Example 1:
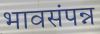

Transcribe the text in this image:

भावसंपन्न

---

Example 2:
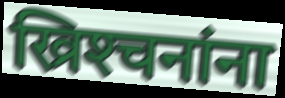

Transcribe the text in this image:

ख्रिश्‍चनांना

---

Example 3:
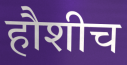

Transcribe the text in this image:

हौशीच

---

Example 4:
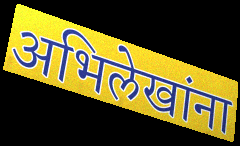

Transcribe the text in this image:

अभिलेखांना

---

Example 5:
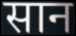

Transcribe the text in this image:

सान